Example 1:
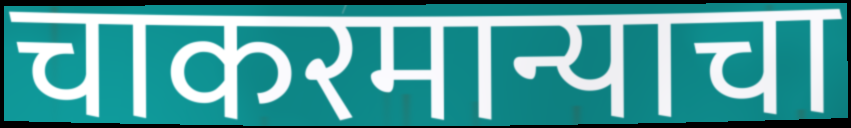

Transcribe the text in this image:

चाकरमान्याचा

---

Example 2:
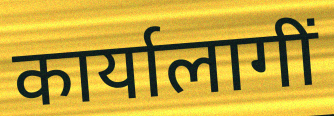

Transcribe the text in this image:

कार्यालागीं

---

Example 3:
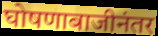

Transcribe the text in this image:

घोषणाबाजीनंतर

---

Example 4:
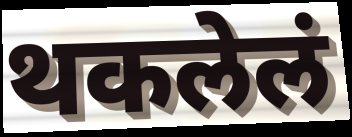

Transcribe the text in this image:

थकलेलं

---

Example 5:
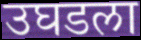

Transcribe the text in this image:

उघडला